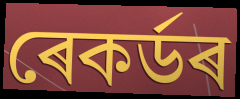
ৰেকৰ্ডৰ